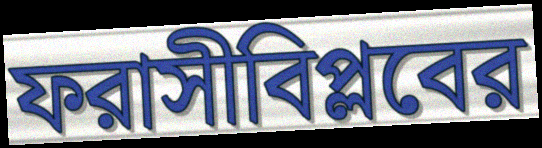
ফরাসীবিপ্লবের